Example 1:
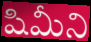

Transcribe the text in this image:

షిమీని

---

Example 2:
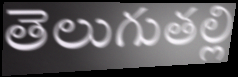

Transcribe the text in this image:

తెలుగుతల్లి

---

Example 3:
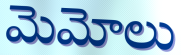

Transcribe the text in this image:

మెమోలు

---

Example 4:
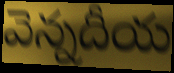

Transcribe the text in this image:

వెన్నదీయ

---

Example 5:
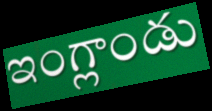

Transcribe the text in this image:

ఇంగ్లాండు